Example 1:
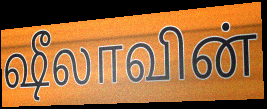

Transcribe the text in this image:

ஷீலாவின்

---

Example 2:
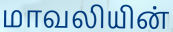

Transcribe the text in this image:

மாவலியின்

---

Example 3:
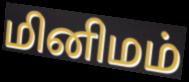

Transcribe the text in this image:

மினிமம்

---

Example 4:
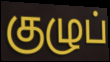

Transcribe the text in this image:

குழுப்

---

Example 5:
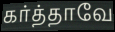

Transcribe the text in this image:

கர்த்தாவே